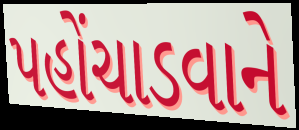
પહોંચાડવાને